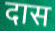
दास